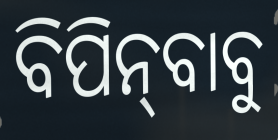
ବିପିନ୍‌ବାବୁ